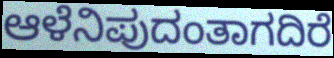
ಆಳೆನಿಪುದಂತಾಗದಿರೆ